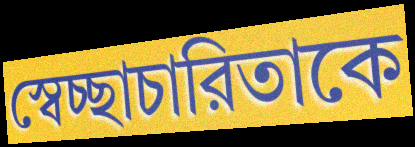
স্বেচ্ছাচারিতাকে